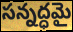
సన్నద్ధమై